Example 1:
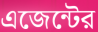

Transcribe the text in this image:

এজেন্টের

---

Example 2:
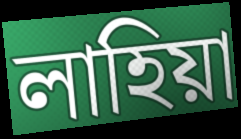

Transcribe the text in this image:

লাহিয়া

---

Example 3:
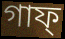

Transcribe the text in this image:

গাফ্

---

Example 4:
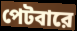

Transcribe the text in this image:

পেটবারে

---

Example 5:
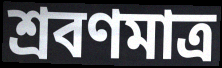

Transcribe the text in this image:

শ্রবণমাত্র